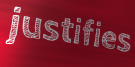
justifies